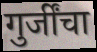
गुर्जींचा